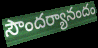
సౌందర్యానందం